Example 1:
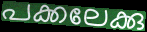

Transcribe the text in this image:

പക്കലേക്കു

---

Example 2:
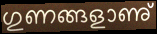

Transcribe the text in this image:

ഗുണങ്ങളാണു്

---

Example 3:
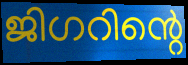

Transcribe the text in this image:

ജിഗറിന്റെ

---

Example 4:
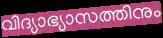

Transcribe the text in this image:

വിദ്യാഭ്യാസത്തിനും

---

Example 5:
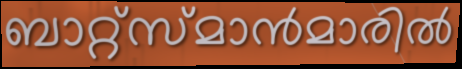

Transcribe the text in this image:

ബാറ്റ്സ്മാൻമാരിൽ